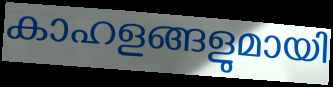
കാഹളങ്ങളുമായി